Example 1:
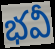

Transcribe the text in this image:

భవీ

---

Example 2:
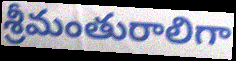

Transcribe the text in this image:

శ్రీమంతురాలిగా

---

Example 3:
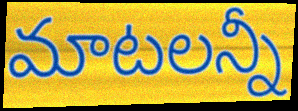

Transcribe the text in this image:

మాటలన్నీ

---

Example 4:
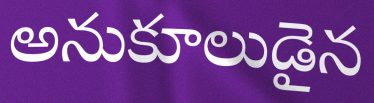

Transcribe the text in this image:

అనుకూలుడైన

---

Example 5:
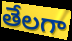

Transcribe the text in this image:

తేలగా